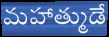
మహాత్ముడే